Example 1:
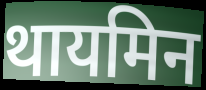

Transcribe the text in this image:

थायमिन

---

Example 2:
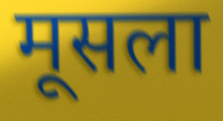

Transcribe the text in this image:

मूसला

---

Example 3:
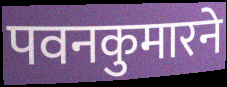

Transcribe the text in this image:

पवनकुमारने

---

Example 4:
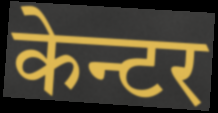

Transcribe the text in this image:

केन्टर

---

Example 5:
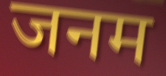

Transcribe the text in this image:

जनम